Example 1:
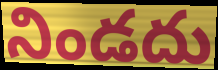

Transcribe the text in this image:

నిండదు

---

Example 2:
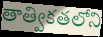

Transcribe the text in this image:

తాత్వికతలోని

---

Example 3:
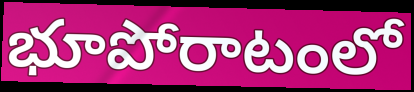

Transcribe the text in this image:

భూపోరాటంలో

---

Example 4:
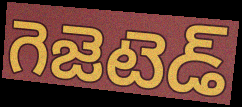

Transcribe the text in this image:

గెజెటెడ్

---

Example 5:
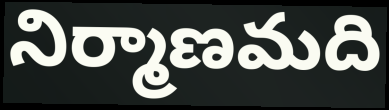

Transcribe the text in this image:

నిర్మాణమది